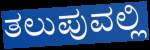
ತಲುಪುವಲ್ಲಿ